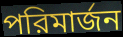
পরিমার্জন